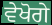
ਵੇਖੋਗੇ